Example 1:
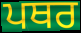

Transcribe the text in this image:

ਪਥਰ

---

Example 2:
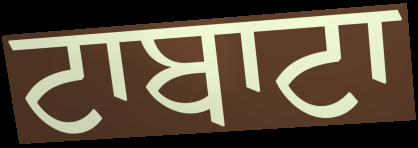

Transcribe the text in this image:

ਟਾਬਾਟਾ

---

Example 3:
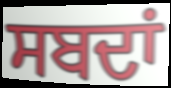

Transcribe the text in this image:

ਸਬਦਾਂ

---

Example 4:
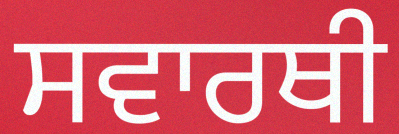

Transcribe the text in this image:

ਸਵਾਰਥੀ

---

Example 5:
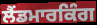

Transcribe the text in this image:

ਲੈਂਡਮਾਰਕਿੰਗ